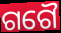
ଗଗୈ